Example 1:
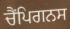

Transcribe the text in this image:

ਚੈਂਪਿਗਨਸ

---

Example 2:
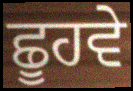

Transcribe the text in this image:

ਛੂਹਵੇ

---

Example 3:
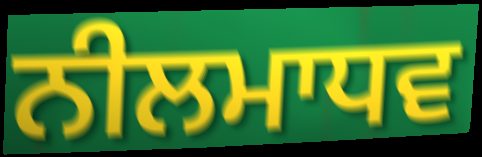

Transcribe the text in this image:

ਨੀਲਮਾਧਵ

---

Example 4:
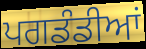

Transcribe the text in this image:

ਪਗਡੰਡੀਆਂ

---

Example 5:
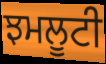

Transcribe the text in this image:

ਝਮਲੂਟੀ